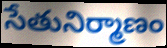
సేతునిర్మాణం